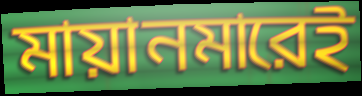
মায়ানমারেই